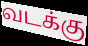
வடக்கு